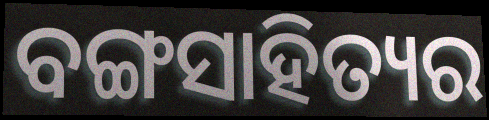
ବଙ୍ଗସାହିତ୍ୟର